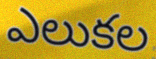
ఎలుకల